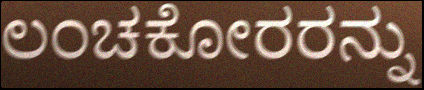
ಲಂಚಕೋರರನ್ನು